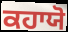
ਕਹਾਯੋ